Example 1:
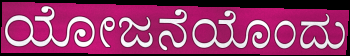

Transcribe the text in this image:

ಯೋಜನೆಯೊಂದು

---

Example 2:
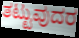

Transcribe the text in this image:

ತಟ್ಟುವುದರ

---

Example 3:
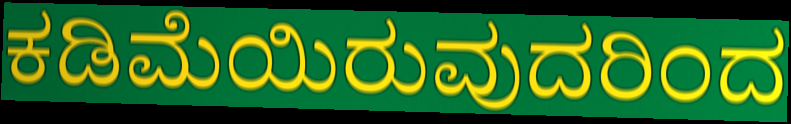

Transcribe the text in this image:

ಕಡಿಮೆಯಿರುವುದರಿಂದ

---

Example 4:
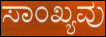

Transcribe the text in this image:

ಸಾಂಖ್ಯವು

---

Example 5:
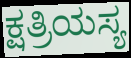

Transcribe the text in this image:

ಕ್ಷತ್ರಿಯಸ್ಯ